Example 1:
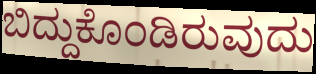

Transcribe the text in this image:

ಬಿದ್ದುಕೊಂಡಿರುವುದು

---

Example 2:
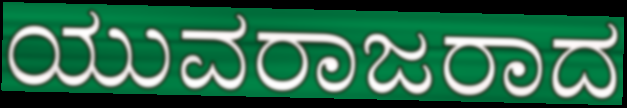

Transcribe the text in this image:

ಯುವರಾಜರಾದ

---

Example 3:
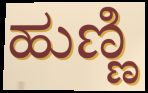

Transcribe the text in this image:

ಹುಣ್ಣಿ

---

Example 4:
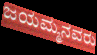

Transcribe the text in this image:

ಜಯಮ್ಮನವರು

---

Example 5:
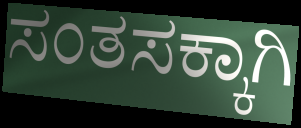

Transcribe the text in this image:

ಸಂತಸಕ್ಕಾಗಿ